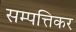
सम्पत्तिकर